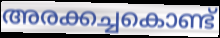
അരക്കച്ചകൊണ്ട്